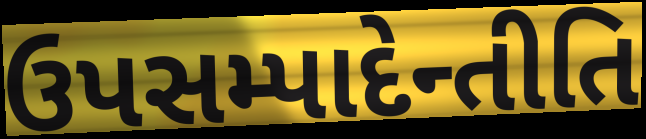
ઉપસમ્પાદેન્તીતિ